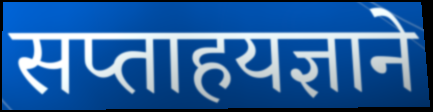
सप्ताहयज्ञाने